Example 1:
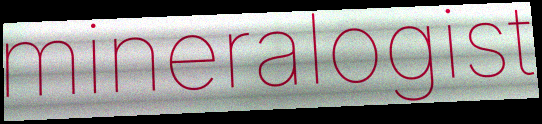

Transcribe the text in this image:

mineralogist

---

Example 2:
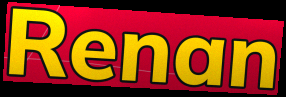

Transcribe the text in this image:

Renan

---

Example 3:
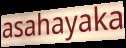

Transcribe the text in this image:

asahayaka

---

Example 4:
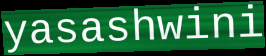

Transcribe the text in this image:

yasashwini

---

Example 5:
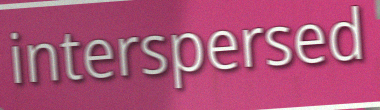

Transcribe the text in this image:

interspersed